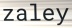
zaley